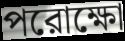
পরোক্ষো